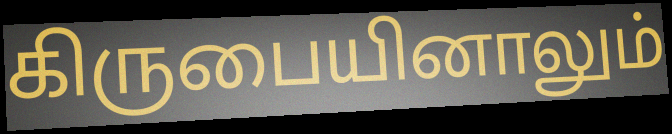
கிருபையினாலும்